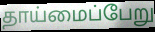
தாய்மைப்பேறு